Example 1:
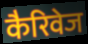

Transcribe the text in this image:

कैरिवेज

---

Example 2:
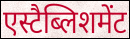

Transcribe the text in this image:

एस्टैब्लिशमेंट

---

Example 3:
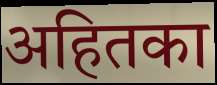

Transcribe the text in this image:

अहितका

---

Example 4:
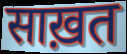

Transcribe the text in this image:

साख़त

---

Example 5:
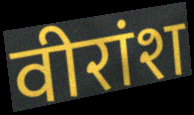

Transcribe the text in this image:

वीरांश